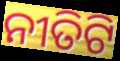
ନୀତିଟି